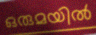
ഒരുമയിൽ